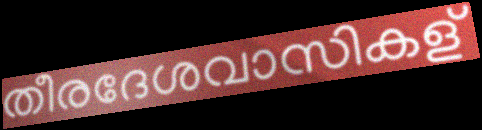
തീരദേശവാസികള്